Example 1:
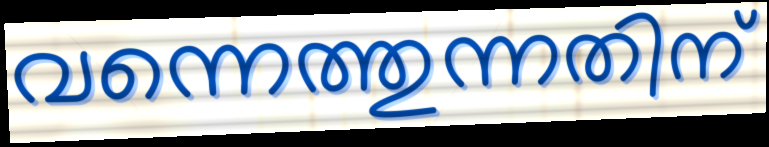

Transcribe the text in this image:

വന്നെത്തുന്നതിന്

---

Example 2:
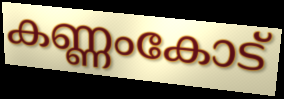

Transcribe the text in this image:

കണ്ണംകോട്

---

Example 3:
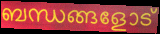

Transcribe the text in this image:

ബന്ധങ്ങളോട്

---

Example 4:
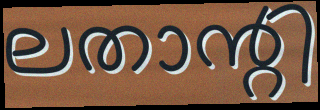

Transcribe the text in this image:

ലതാന്റി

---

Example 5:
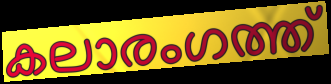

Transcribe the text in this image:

കലാരംഗത്ത്